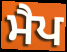
ਮੈਪ